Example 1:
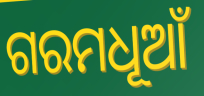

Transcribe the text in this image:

ଗରମଧୂଆଁ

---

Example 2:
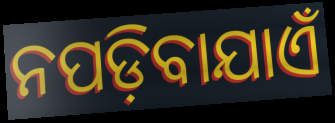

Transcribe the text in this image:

ନପଡ଼ିବାଯାଏଁ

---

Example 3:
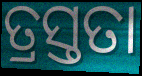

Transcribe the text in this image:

ତ୍ରସ୍ତତା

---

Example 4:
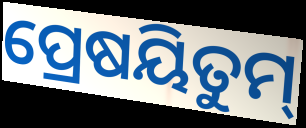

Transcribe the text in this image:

ପ୍ରେଷୟିତୁମ୍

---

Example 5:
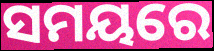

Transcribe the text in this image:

ସମୟରେ